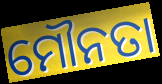
ମୌନତା